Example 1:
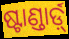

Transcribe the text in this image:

ଷ୍ଟାଣ୍ଡାର୍ଡ଼୍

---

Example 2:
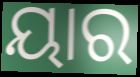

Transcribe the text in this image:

ୟାର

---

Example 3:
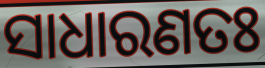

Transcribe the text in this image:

ସାଧାରଣତଃ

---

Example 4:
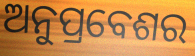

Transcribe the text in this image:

ଅନୁପ୍ରବେଶର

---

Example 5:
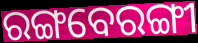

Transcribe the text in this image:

ରଙ୍ଗବେରଙ୍ଗୀ